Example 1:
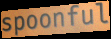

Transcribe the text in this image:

spoonful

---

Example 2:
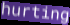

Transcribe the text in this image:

hurting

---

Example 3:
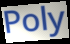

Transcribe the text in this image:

Poly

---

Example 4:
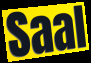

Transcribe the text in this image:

Saal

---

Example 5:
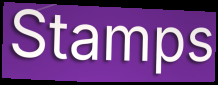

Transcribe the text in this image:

Stamps